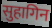
सुहागिन